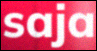
saja